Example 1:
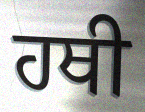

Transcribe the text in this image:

ਹਥੀ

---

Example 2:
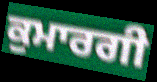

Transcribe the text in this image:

ਕੁਮਾਰਗੀ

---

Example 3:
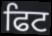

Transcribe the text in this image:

ਫਿਟ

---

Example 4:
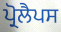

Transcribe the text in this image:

ਪ੍ਰੋਲੈਪਸ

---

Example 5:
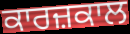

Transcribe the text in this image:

ਕਾਰਜ਼ਕਾਲ